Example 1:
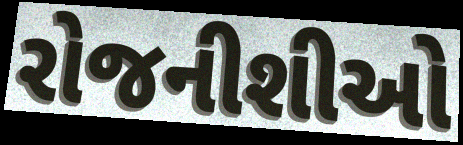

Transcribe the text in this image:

રોજનીશીઓ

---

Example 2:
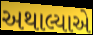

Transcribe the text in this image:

અથાલ્યાએ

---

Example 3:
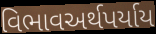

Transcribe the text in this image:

વિભાવઅર્થપર્યાય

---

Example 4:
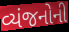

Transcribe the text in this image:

વ્યંજનોની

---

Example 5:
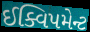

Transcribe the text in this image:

ઈક્વિપમેન્ટ